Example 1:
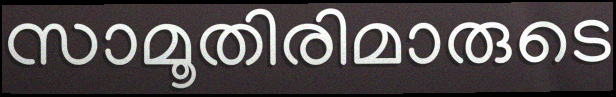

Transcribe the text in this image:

സാമൂതിരിമാരുടെ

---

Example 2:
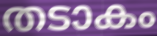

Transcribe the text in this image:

തടാകം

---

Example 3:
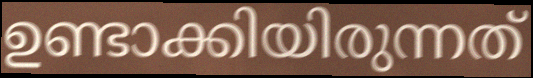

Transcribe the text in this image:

ഉണ്ടാക്കിയിരുന്നത്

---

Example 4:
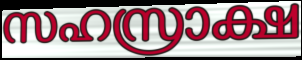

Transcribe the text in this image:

സഹസ്രാക്ഷ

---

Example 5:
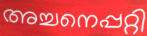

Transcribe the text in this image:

അച്ചനെപ്പറ്റി